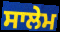
ਸਾਲੇਮ